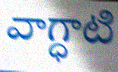
వాగ్ధాటి